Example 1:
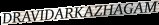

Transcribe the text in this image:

DRAVIDARKAZHAGAM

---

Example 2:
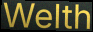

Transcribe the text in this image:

Welth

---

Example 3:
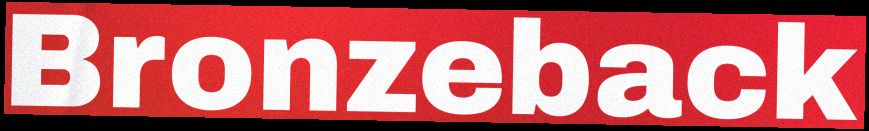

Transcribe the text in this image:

Bronzeback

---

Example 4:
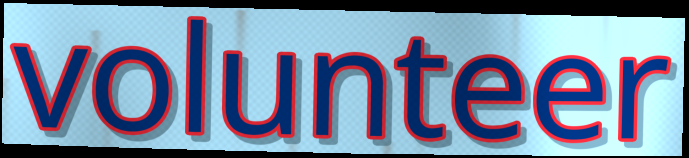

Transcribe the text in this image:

volunteer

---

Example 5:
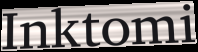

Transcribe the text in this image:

Inktomi